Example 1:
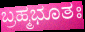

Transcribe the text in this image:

ಬ್ರಹ್ಮಭೂತಃ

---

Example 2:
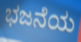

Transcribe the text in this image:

ಭಜನೆಯ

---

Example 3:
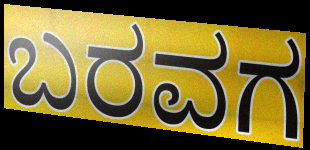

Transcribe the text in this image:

ಬರವಗ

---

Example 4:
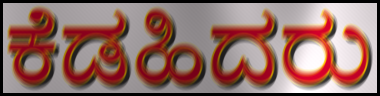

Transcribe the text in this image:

ಕೆಡಹಿದರು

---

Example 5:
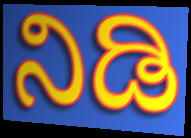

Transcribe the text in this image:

ನಿಡಿ